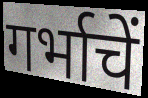
गर्भाचें